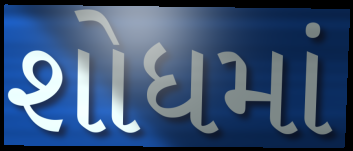
શોધમાં